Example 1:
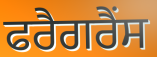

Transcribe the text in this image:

ਫਰੈਗਰੈਂਸ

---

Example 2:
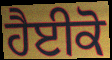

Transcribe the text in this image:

ਹੈਈਕੋ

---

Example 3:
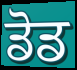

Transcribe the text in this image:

ਡੋਡ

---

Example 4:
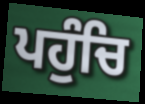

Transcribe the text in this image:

ਪਹੁੰਚਿ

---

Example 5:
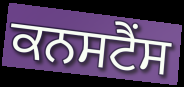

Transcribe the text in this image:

ਕਨਸਟੈਂਸ